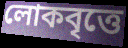
লোকবৃত্তে